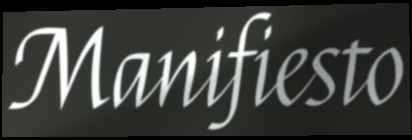
Manifiesto